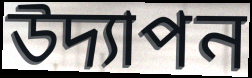
উদ্যাপন